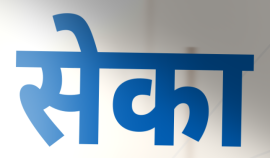
सेका